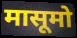
मासूमो